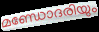
മണ്ഡോദരിയും